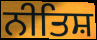
ਨੀਤਿਸ਼